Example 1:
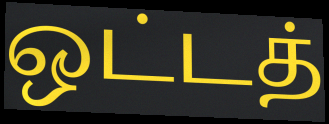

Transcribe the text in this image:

ஒட்டத்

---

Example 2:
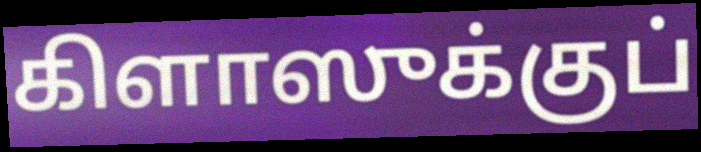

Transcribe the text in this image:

கிளாஸுக்குப்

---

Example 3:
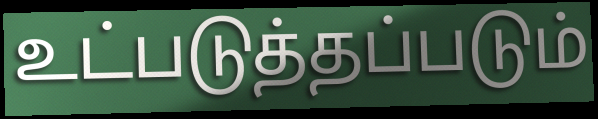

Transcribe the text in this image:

உட்படுத்தப்படும்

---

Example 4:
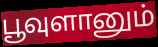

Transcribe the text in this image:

பூவுளானும்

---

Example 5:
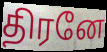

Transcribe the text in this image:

திரனே